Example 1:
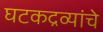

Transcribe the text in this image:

घटकद्रव्यांचे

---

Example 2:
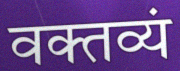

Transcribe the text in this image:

वक्तव्यं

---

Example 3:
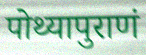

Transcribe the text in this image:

पोथ्यापुराणं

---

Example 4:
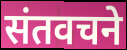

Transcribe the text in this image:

संतवचने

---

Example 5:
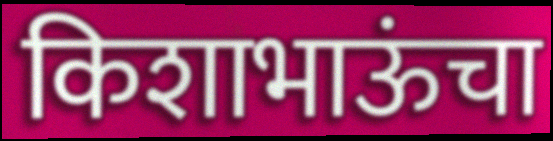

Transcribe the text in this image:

किशाभाऊंचा